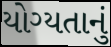
યોગ્યતાનું